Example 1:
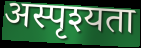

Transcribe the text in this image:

अस्पृश्यता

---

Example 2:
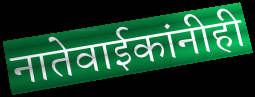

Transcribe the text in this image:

नातेवाईकांनीही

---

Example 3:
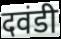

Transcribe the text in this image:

दवंडी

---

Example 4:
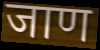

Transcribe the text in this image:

जाण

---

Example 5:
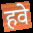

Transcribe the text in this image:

हवे